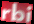
rbi